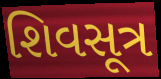
શિવસૂત્ર